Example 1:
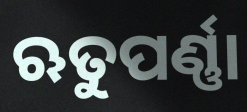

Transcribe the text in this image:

ଋତୁପର୍ଣ୍ଣା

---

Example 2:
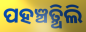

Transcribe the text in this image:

ପହଞ୍ଚତ୍ଥିଲି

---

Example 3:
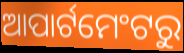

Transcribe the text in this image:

ଆପାର୍ଟମେଂଟରୁ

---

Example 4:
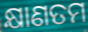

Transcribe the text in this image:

କ୍ଷାଣତମ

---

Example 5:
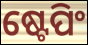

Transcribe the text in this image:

ଷ୍ଟେପିଂ